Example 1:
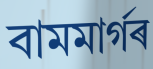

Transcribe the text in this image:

বামমাৰ্গৰ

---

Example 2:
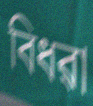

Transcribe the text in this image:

বিধৱা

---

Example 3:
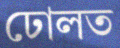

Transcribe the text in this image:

ঢোলত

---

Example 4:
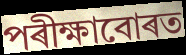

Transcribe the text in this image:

পৰীক্ষাবোৰত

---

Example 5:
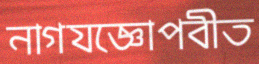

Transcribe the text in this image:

নাগযজ্ঞোপবীত